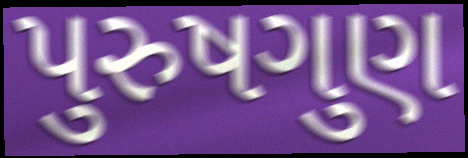
પુરુષગુણ